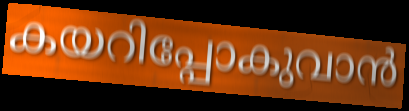
കയറിപ്പോകുവാൻ